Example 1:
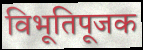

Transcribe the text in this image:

विभूतिपूजक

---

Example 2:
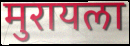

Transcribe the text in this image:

मुरायला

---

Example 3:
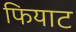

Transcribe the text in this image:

फियाट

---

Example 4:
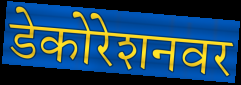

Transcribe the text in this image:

डेकोरेशनवर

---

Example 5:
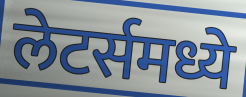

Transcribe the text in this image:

लेटर्समध्ये